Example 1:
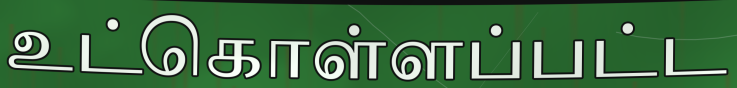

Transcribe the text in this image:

உட்கொள்ளப்பட்ட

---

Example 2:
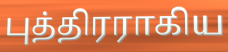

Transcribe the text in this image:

புத்திரராகிய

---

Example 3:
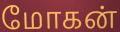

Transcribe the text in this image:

மோகன்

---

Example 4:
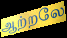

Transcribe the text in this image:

ஆற்றலே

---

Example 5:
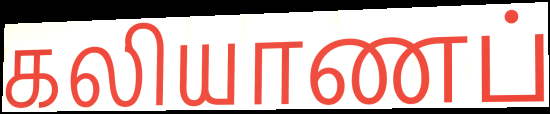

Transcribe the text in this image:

கலியாணப்